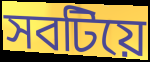
সবটিয়ে